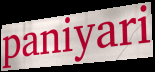
paniyari